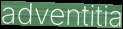
adventitia